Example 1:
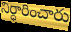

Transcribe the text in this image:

నిర్ధారించారు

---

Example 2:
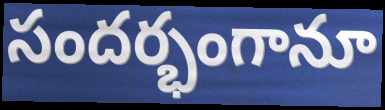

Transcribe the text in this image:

సందర్భంగానూ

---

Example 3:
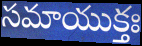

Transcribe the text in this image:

సమాయుక్తః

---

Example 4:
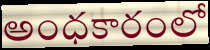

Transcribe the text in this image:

అంధకారంలో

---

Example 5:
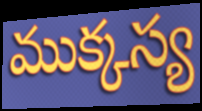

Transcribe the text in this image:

ముక్కస్య